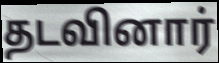
தடவினார்